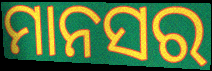
ମାନସର